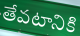
తేవటానికి